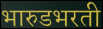
भारुडभरती